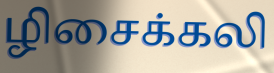
ழிசைக்கலி